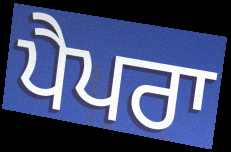
ਪੈਪਰਾ